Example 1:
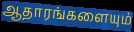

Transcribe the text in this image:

ஆதாரங்களையும்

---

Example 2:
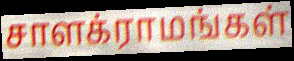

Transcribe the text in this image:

சாளக்ராமங்கள்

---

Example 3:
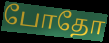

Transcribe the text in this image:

போதோ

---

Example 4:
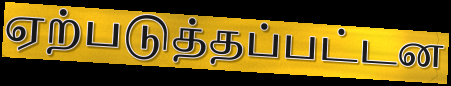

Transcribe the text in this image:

ஏற்படுத்தப்பட்டன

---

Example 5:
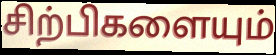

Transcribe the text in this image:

சிற்பிகளையும்